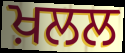
ਖ਼ਲਲ